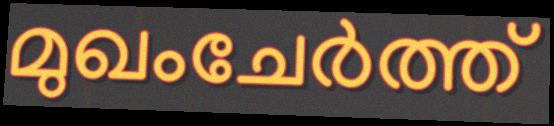
മുഖംചേർത്ത്